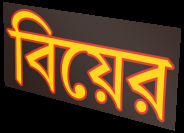
বিয়ের